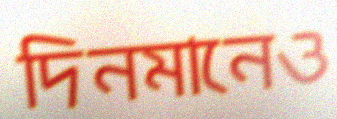
দিনমানেও